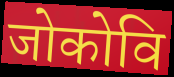
जोकोवि